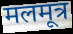
मलमूत्र